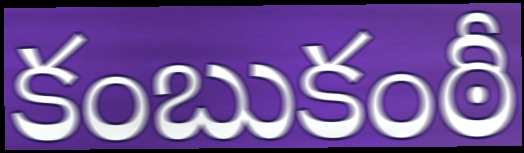
కంబుకంఠీ